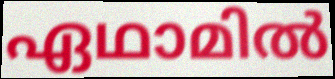
ഏഥാമിൽ